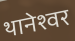
थानेश्वर